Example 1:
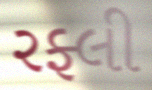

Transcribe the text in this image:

રફ્લી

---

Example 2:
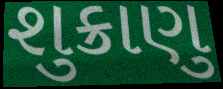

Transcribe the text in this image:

શુક્રાણુ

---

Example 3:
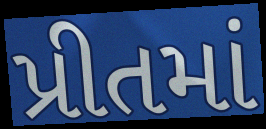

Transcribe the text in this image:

પ્રીતમાં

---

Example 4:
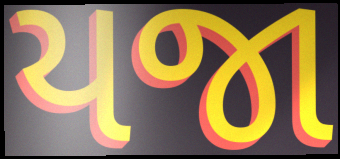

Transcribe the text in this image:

યજા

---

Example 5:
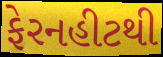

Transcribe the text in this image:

ફેરનહીટથી